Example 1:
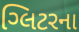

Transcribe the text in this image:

ગ્લિટરના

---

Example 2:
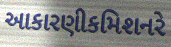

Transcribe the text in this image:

આકારણીકમિશનરે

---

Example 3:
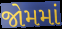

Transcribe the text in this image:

જોમમાં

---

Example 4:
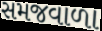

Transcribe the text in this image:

સમજવાળા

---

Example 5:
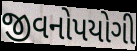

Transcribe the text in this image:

જીવનોપયોગી